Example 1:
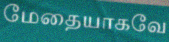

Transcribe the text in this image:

மேதையாகவே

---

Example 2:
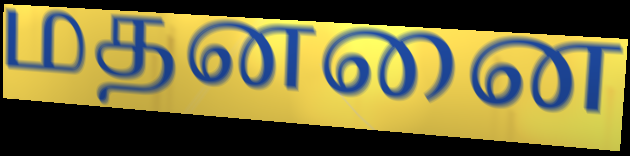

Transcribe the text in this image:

மதனனை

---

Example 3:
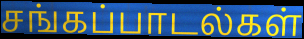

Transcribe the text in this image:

சங்கப்பாடல்கள்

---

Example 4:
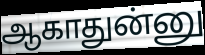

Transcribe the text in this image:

ஆகாதுன்னு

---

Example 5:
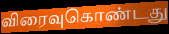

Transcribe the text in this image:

விரைவுகொண்டது